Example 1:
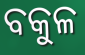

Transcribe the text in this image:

ବକୁଳ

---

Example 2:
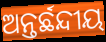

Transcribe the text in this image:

ଅନ୍ତର୍ଛନ୍ଦୀୟ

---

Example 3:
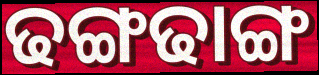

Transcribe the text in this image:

ଢଙ୍ଗଢାଙ୍ଗ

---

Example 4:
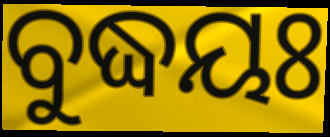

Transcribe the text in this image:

ବୁଦ୍ଧୟଃ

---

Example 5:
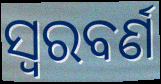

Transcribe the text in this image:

ସ୍ଵରବର୍ଣ